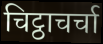
चिट्ठाचर्चा